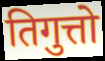
तिगुत्तो